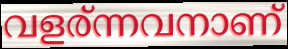
വളര്ന്നവനാണ്